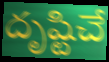
దృష్టిచే